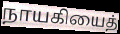
நாயகியைத்